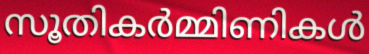
സൂതികർമ്മിണികൾ